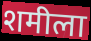
शमीला